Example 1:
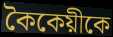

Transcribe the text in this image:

কৈকেয়ীকে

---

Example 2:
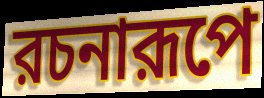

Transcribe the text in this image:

রচনারূপে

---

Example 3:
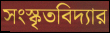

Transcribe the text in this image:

সংস্কৃতবিদ্যার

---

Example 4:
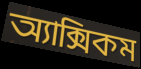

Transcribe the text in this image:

অ্যাক্সিকম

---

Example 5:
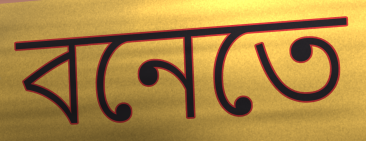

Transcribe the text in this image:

বনেতে